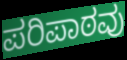
ಪರಿಪಾಠವು